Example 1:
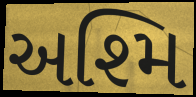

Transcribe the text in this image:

અશ્મિ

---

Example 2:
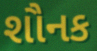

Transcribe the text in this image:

શૌનક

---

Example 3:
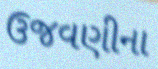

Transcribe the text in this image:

ઉજવણીના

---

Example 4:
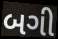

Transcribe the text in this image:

બગી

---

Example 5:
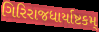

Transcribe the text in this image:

ગિરિરાજધાર્યાષ્ટકમ્